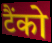
टैंको